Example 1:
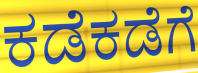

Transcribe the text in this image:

ಕಡೆಕಡೆಗೆ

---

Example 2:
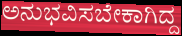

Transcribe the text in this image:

ಅನುಭವಿಸಬೇಕಾಗಿದ್ದ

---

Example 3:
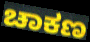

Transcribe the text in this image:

ಚಾಕಣ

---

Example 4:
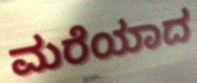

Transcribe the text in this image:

ಮರೆಯಾದ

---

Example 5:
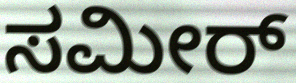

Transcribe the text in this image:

ಸಮೀರ್